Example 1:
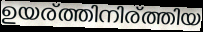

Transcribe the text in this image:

ഉയര്ത്തിനിര്ത്തിയ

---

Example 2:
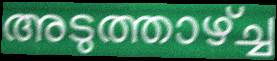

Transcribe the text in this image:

അടുത്താഴ്ച്ച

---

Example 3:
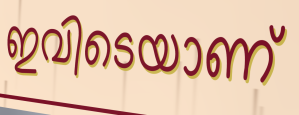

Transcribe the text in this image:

ഇവിടെയാണ്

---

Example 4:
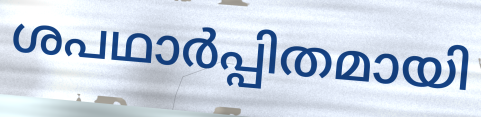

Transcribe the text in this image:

ശപഥാർപ്പിതമായി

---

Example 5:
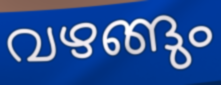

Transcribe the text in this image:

വഴങ്ങും